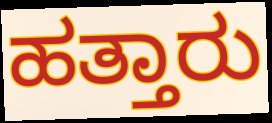
ಹತ್ತಾರು